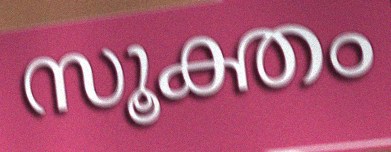
സൂക്തം